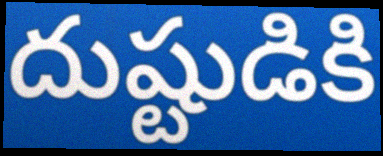
దుష్టుడికి